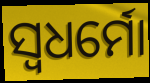
ସ୍ୱଧର୍ମୋ